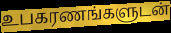
உபகரணங்களுடன்